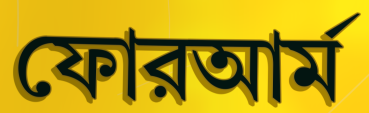
ফোরআর্ম